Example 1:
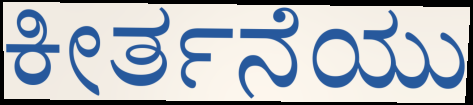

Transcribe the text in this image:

ಕೀರ್ತನೆಯು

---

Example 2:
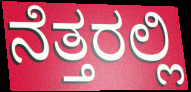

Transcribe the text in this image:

ನೆತ್ತರಲ್ಲಿ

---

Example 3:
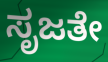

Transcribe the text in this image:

ಸೃಜತೇ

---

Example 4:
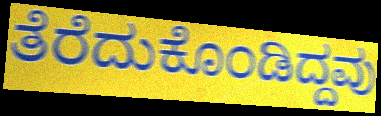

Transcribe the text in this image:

ತೆರೆದುಕೊಂಡಿದ್ದವು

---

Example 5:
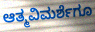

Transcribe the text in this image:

ಆತ್ಮವಿಮರ್ಶೆಗೂ